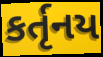
કર્તૃનય